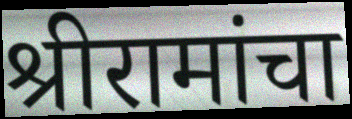
श्रीरामांचा